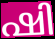
ഷി